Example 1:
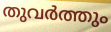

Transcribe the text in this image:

തുവർത്തും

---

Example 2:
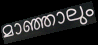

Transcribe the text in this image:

മാഞ്ഞാലും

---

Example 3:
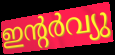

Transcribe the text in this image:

ഇന്റർവ്യു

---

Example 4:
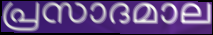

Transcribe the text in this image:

പ്രസാദമാല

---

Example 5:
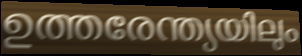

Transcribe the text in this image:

ഉത്തരേന്ത്യയിലും